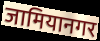
जामियानगर